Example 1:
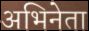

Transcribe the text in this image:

अभिनेता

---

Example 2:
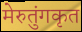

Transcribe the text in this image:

मेरुतुंगकृत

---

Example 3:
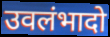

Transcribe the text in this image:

उवलंभादो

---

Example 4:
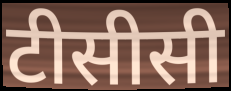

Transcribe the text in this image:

टीसीसी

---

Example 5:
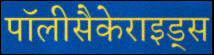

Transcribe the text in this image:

पॉलीसैकेराइड्स